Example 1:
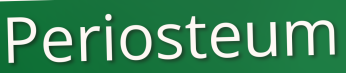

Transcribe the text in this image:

Periosteum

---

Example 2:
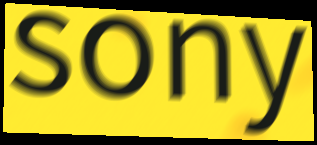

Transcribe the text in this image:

sony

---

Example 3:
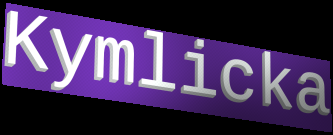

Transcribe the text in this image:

Kymlicka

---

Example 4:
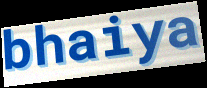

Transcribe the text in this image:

bhaiya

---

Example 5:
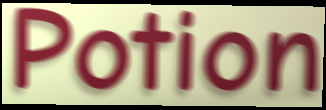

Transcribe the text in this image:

Potion